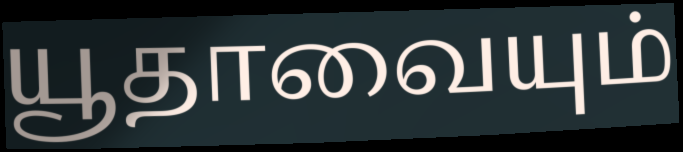
யூதாவையும்